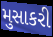
મુસાકરી